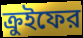
ক্রুইফের